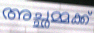
അച്ഛമ്മക്ക്